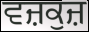
ਵਜ਼ਕੁਜ਼